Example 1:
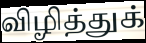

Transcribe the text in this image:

விழித்துக்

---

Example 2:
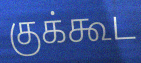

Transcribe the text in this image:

குக்கூட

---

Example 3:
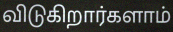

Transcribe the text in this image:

விடுகிறார்களாம்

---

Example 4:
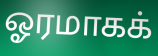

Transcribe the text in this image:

ஓரமாகக்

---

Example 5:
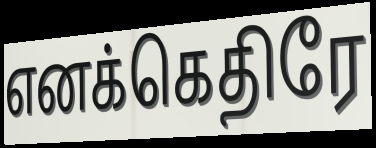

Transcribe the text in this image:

எனக்கெதிரே